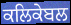
ਕਲਿਕੇਬਲ